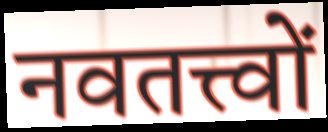
नवतत्त्वों